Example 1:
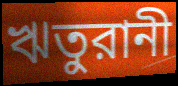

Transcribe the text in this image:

ঋতুরানী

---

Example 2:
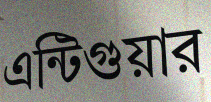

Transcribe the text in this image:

এন্টিগুয়ার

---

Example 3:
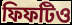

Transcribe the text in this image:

ফিফটিও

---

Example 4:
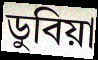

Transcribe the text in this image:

ডুবিয়া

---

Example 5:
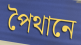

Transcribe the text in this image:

পৈথানে